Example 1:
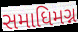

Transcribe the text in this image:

સમાધિમગ્ન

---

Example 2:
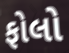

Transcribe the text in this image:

ફોલો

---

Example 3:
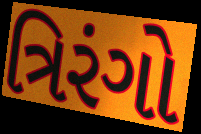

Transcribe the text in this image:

ત્રિરંગો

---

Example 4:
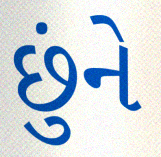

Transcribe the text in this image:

છુંને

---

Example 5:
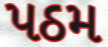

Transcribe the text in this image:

પઠમ